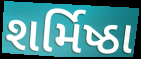
શર્મિષ્ઠા